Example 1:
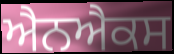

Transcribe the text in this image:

ਐਨਐਕਸ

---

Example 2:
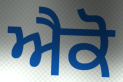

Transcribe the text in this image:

ਐਕੋ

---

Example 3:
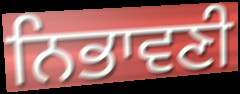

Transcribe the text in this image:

ਨਿਭਾਵਣੀ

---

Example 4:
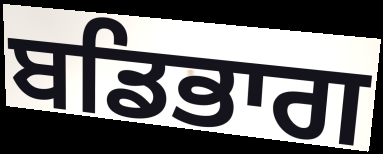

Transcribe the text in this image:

ਬਡਿਭਾਗ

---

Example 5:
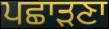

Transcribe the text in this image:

ਪਛਾੜਣਾ